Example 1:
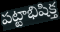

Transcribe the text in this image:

పట్టాభిషిక్త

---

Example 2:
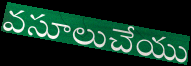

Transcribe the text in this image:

వసూలుచేయు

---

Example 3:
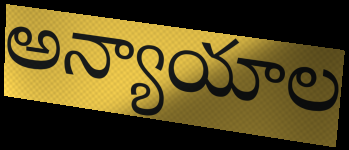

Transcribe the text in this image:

అన్యాయాల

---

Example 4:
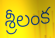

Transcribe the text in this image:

శ్రీలంక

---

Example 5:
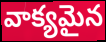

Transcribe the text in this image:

వాక్యమైన